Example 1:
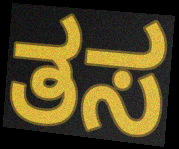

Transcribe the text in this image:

ತಸ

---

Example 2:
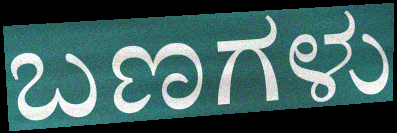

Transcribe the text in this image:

ಬಣಗಳು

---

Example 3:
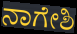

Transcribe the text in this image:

ನಾಗೇಶಿ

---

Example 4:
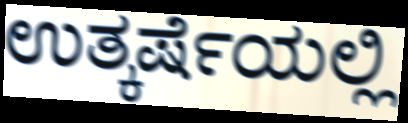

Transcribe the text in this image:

ಉತ್ಕರ್ಷೆಯಲ್ಲಿ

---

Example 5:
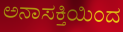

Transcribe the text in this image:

ಅನಾಸಕ್ತಿಯಿಂದ